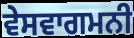
ਵੇਸਵਾਗਮਨੀ